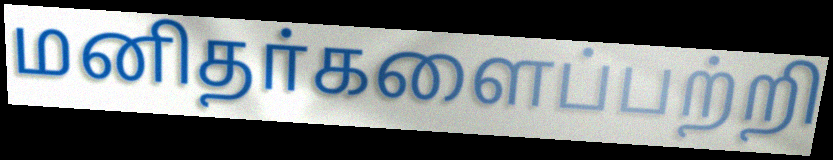
மனிதர்களைப்பற்றி